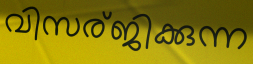
വിസര്ജിക്കുന്ന